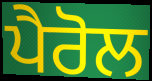
ਪੈਰੋਲ